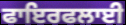
ਫਾਇਰਫਲਾਈ